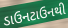
ડાઉનટાઉનથી